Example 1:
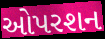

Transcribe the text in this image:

ઓપરશન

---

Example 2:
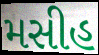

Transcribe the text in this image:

મસીહ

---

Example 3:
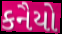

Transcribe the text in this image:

કનૈયો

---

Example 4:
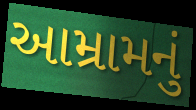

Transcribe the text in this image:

આમ્રામનું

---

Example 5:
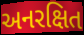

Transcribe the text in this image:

અનરક્ષિત